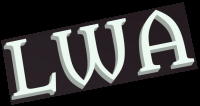
LWA